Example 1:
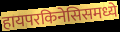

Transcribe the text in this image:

हायपरकिनेसिसमध्ये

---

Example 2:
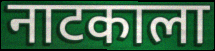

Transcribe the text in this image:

नाटकाला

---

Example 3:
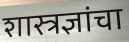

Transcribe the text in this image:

शास्त्रज्ञांचा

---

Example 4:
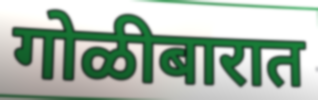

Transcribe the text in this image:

गोळीबारात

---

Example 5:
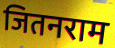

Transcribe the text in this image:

जितनराम